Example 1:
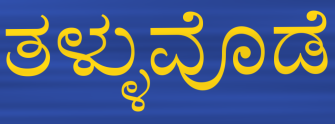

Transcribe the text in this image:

ತಳ್ಳುವೊಡೆ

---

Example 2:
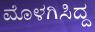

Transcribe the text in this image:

ಮೊಳಗಿಸಿದ್ದ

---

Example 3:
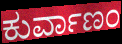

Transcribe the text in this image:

ಕುರ್ವಾಣಂ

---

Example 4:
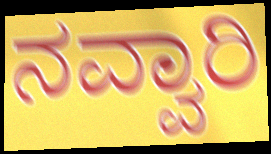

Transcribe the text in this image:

ನವ್ವಾರಿ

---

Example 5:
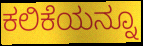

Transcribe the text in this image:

ಕಲಿಕೆಯನ್ನೂ